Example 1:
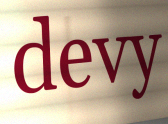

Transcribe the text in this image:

devy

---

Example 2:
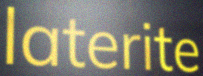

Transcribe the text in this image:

laterite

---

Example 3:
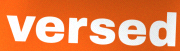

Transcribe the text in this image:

versed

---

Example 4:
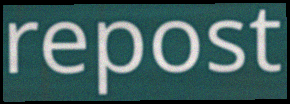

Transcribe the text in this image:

repost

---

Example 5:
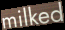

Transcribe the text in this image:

milked